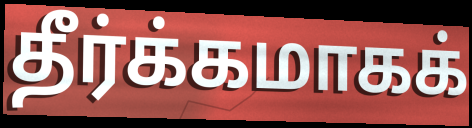
தீர்க்கமாகக்